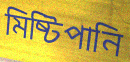
মিষ্টিপানি